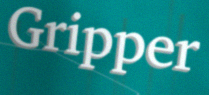
Gripper